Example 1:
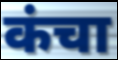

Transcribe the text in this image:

कंचा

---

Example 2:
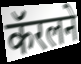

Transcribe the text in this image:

कॅरलने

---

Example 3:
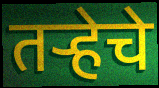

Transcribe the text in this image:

तर्‍हेचे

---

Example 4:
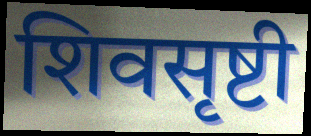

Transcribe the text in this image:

शिवसृष्टी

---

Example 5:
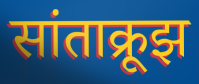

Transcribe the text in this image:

सांताक्रूझ